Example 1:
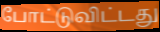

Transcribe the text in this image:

போட்டுவிட்டது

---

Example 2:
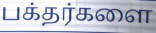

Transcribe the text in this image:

பக்தர்களை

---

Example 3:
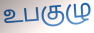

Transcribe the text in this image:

உபகுழு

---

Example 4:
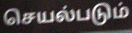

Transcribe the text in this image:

செயல்படும்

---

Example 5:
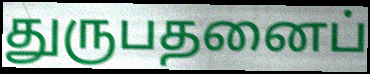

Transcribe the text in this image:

துருபதனைப்